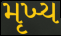
મૃખ્ય